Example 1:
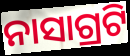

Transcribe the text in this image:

ନାସାଗ୍ରଟି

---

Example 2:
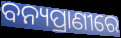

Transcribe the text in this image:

ବନ୍ୟପ୍ରାଣୀରେ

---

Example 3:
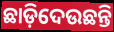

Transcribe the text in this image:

ଛାଡ଼ିଦେଉଛନ୍ତି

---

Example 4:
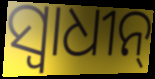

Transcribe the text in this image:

ସ୍ଵାଧୀନ୍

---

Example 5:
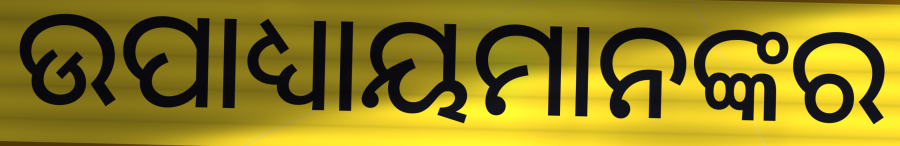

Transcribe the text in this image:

ଉପାଧ୍ୟାୟମାନଙ୍କର